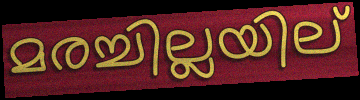
മരച്ചില്ലയില്